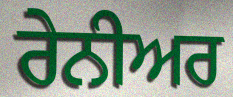
ਰੇਨੀਅਰ